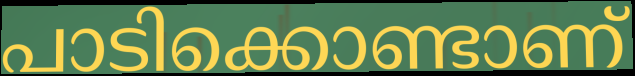
പാടിക്കൊണ്ടാണ്